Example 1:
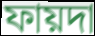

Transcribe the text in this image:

ফায়দা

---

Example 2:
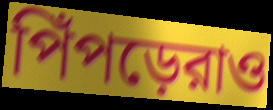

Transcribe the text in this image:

পিঁপড়েরাও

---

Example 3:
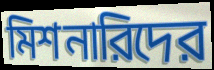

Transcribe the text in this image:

মিশনারিদের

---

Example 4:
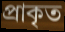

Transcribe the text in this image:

প্রাকৃত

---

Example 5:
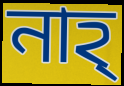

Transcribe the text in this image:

নাহ্